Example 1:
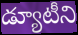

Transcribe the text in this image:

డ్యూటీని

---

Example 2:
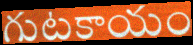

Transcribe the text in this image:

గుటకాయం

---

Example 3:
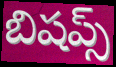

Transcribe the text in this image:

బిషప్స్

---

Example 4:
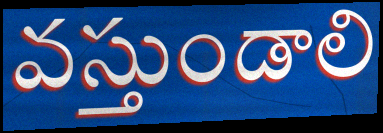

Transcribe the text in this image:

వస్తుండాలి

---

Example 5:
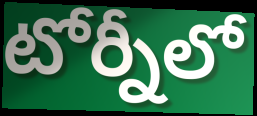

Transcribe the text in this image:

టోర్నీలో